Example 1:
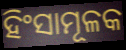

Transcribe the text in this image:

ହିଂସାମୂଳକ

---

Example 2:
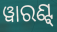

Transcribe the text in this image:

ୱାରଣ୍ଟ୍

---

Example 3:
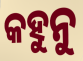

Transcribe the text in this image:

କହୁନୁ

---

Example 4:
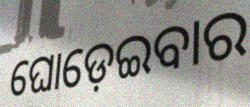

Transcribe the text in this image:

ଘୋଡ଼େଇବାର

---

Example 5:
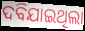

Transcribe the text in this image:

ଦବିଯାଇଥିଲା